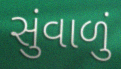
સુંવાળું